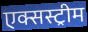
एक्सस्ट्रीम